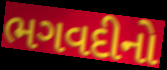
ભગવદીનો